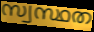
സ്വസ്ഥത